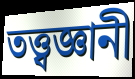
তত্ত্বজ্ঞানী